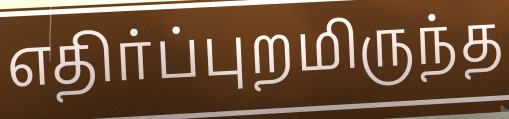
எதிர்ப்புறமிருந்த